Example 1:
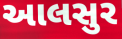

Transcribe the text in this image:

આલસુર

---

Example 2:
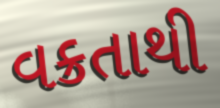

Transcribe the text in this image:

વક્રતાથી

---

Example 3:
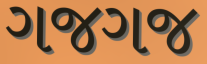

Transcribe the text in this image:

ગજગજ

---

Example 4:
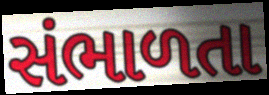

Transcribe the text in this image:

સંભાળતા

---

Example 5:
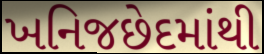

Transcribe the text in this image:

ખનિજછેદમાંથી